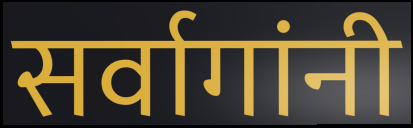
सर्वागांनी